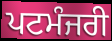
ਪਟਮੰਜਰੀ